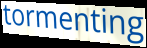
tormenting